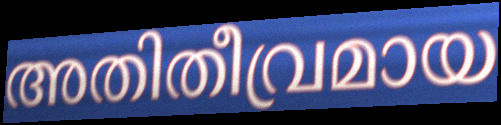
അതിതീവ്രമായ